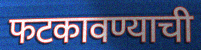
फटकावण्याची